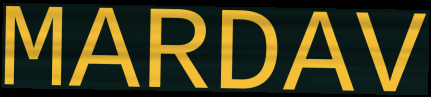
MARDAV